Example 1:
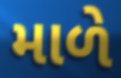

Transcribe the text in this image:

માળે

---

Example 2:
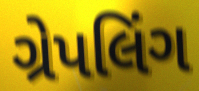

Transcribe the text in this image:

ગ્રેપલિંગ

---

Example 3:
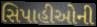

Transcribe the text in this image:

સિપાહીઓની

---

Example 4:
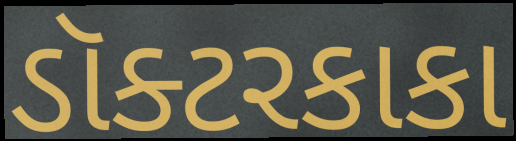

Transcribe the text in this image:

ડૉક્ટરકાકા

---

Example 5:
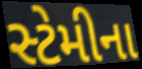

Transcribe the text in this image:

સ્ટેમીના